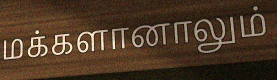
மக்களானாலும்